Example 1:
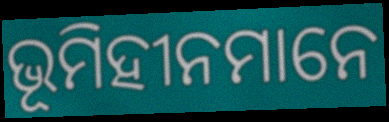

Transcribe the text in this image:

ଭୂମିହୀନମାନେ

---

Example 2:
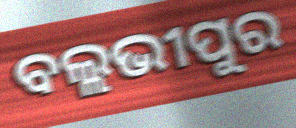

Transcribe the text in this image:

ବଲ୍ଲଭୀପୁର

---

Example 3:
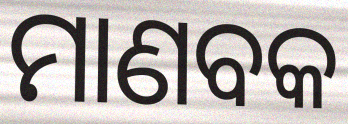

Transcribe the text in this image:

ମାଣବକ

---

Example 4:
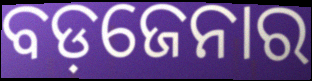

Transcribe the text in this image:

ବଡ଼ଜେନାର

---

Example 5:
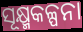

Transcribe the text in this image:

ସୂକ୍ଷ୍ମକଳ୍ପନା